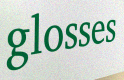
glosses